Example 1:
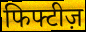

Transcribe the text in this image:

फिफ्टीज़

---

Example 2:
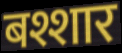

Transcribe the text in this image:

बश्शार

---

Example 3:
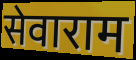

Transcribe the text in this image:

सेवाराम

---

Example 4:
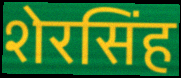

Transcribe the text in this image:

शेरसिंह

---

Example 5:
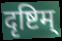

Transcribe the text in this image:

दृष्टिम्